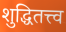
शुद्धितत्त्व